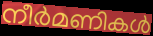
നീർമണികൾ